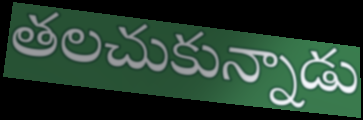
తలచుకున్నాడు